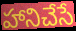
హానిచేసే